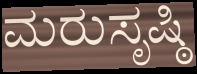
ಮರುಸೃಷ್ಠಿ